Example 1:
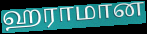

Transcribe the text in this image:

ஹராமான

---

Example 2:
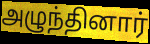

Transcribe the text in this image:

அழுந்தினார்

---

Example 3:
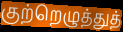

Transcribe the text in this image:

குற்றெழுத்துத்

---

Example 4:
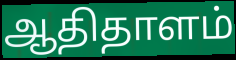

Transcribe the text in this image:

ஆதிதாளம்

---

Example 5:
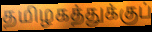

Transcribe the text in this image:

தமிழகத்துக்குப்